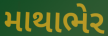
માથાભેર